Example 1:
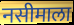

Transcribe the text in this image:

नसीमाला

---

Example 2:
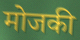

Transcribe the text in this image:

मोजकी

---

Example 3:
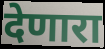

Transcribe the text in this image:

देणारा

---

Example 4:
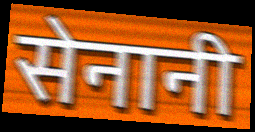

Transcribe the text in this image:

सेनानी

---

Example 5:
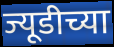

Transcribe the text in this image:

ज्यूडीच्या